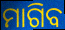
ମାଗିବ